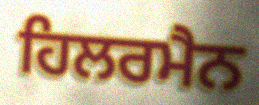
ਹਿਲਰਮੈਨ